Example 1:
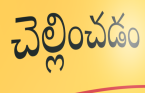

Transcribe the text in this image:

చెల్లించడం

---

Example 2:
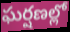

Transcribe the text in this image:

ఘర్షణల్లో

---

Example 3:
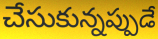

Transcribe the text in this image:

చేసుకున్నప్పుడే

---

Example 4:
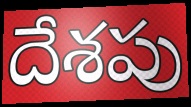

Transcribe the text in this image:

దేశపు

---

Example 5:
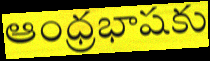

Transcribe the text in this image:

ఆంధ్రభాషకు